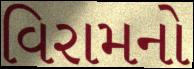
વિરામનો